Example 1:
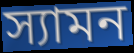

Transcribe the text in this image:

স্যামন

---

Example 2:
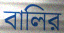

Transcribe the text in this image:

বালির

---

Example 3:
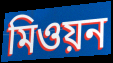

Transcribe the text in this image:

মিওয়ন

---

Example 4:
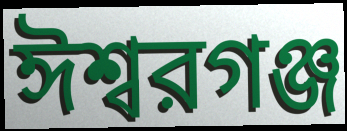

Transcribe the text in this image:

ঈশ্বরগঞ্জ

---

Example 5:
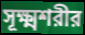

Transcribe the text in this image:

সূক্ষ্মশরীর